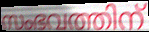
സംഭവത്തിന്